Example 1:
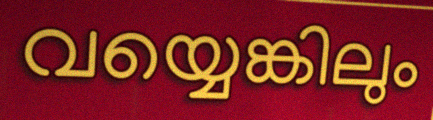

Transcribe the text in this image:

വയ്യെങ്കിലും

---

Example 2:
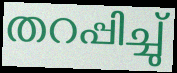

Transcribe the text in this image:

തറപ്പിച്ചു്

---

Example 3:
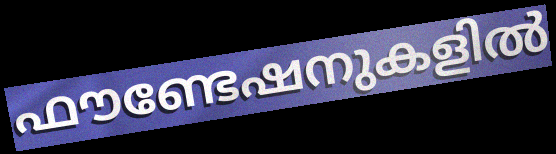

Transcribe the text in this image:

ഫൗണ്ടേഷനുകളിൽ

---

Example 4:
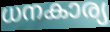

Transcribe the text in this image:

ധനകാര്യ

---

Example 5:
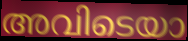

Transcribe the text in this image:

അവിടെയാ